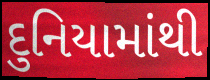
દુનિયામાંથી